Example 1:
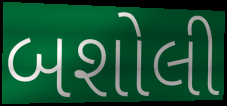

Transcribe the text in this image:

બશોલી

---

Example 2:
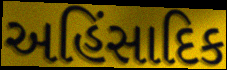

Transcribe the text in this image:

અહિંસાદિક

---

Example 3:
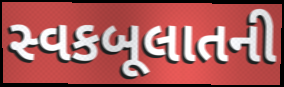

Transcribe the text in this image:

સ્વકબૂલાતની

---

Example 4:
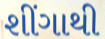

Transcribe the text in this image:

શીંગાથી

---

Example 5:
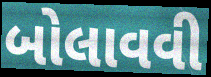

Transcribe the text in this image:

બોલાવવી